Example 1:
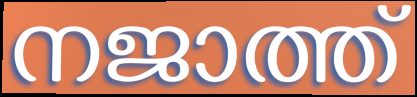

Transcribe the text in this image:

നജാത്ത്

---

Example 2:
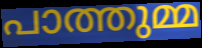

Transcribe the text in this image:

പാത്തുമ്മ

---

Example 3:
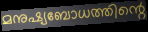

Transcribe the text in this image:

മനുഷ്യബോധത്തിന്റെ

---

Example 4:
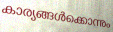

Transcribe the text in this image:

കാര്യങ്ങൾക്കൊന്നും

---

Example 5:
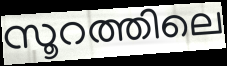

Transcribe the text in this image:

സൂറത്തിലെ